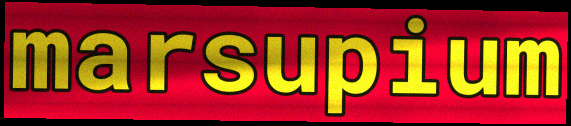
marsupium